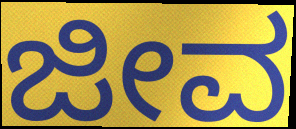
ಜೀವ